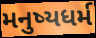
મનુષ્યધર્મ